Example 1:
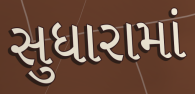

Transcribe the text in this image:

સુધારામાં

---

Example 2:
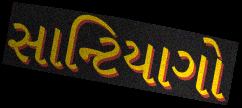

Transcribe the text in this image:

સાન્ટિયાગો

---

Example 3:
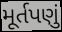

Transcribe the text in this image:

મૂર્તપણું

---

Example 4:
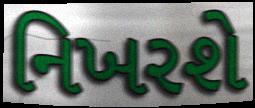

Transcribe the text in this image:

નિખરશે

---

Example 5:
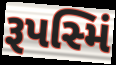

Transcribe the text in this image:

રૂપસ્મિં